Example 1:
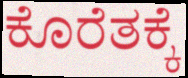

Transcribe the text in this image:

ಕೊರೆತಕ್ಕೆ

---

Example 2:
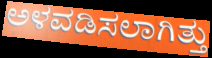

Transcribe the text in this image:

ಅಳವಡಿಸಲಾಗಿತ್ತು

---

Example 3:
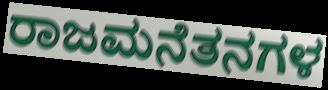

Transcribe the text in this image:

ರಾಜಮನೆತನಗಳ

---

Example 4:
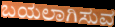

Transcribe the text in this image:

ಬಯಲಾಗಿಸುವ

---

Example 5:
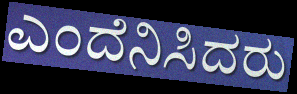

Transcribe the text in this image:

ಎಂದೆನಿಸಿದರು